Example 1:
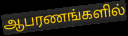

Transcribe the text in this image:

ஆபரணங்களில்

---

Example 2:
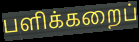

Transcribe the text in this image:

பளிக்கறைப்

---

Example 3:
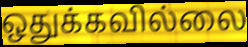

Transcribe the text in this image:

ஒதுக்கவில்லை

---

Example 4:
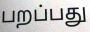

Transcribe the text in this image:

பறப்பது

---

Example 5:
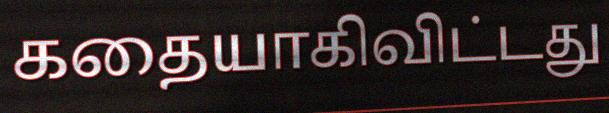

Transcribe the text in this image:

கதையாகிவிட்டது